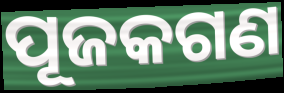
ପୂଜକଗଣ